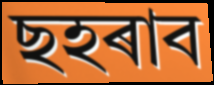
ছহৰাব